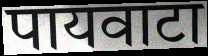
पायवाटा